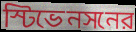
স্টিভেনসনের